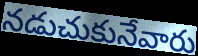
నడుచుకునేవారు